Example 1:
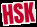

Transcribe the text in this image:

HSK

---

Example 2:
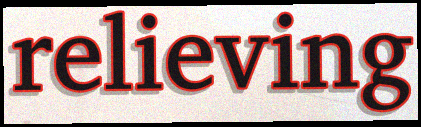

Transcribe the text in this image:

relieving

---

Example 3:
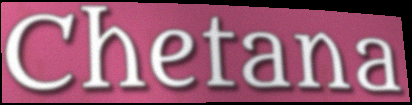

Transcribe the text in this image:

Chetana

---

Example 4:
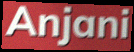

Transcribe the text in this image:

Anjani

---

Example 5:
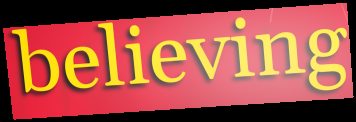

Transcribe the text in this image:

believing